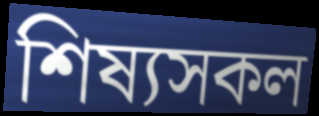
শিষ্যসকল